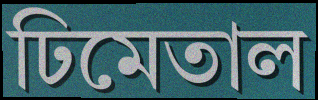
ঢিমেতাল